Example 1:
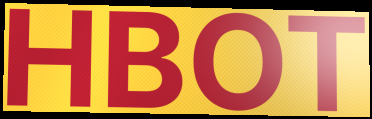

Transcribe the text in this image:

HBOT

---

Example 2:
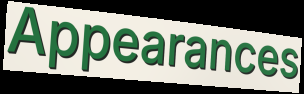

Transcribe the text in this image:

Appearances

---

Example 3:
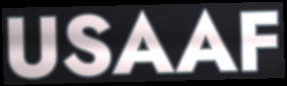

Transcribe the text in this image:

USAAF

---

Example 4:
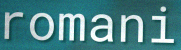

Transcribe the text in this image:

romani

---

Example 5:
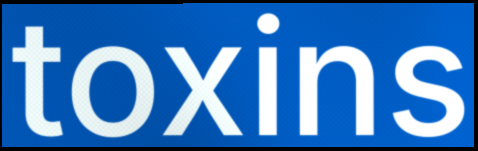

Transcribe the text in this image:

toxins